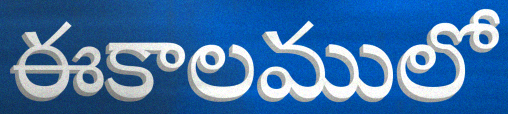
ఈకాలములో